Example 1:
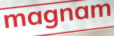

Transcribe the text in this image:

magnam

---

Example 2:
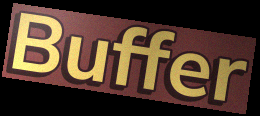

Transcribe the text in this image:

Buffer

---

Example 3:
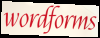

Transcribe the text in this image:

wordforms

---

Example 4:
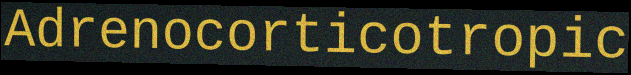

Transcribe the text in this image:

Adrenocorticotropic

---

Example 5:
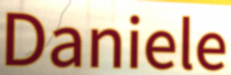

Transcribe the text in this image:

Daniele